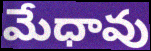
మేధావు